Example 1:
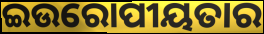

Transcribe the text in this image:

ଇଉରୋପୀୟତାର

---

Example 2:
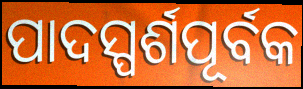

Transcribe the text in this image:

ପାଦସ୍ପର୍ଶପୂର୍ବକ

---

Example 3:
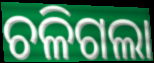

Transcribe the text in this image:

ଚଳିଗଲା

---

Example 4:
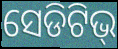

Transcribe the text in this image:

ସେଡିଟିଭ୍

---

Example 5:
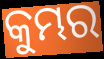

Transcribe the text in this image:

କୁମ୍ଭର